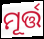
ମୂର୍ତ୍ତ